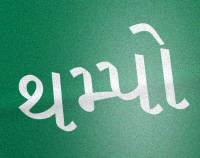
થમ્પો